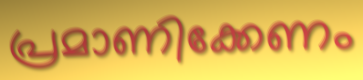
പ്രമാണിക്കേണം